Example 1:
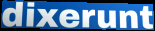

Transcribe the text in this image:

dixerunt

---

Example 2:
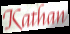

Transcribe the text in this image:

Kathan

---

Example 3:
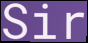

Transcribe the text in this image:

Sir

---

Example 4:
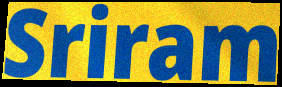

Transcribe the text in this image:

Sriram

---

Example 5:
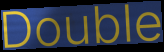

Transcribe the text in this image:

Double